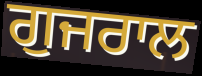
ਗੁਜਰਾਲ